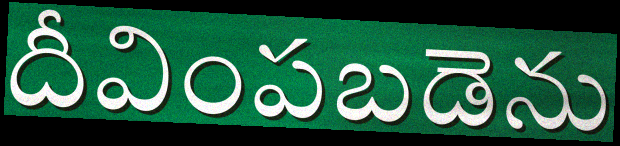
దీవింపబడెను